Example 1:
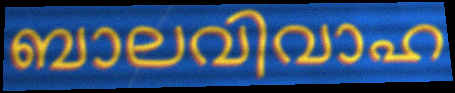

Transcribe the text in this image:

ബാലവിവാഹ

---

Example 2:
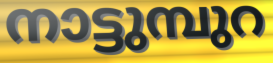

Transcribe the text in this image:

നാട്ടുമ്പുറ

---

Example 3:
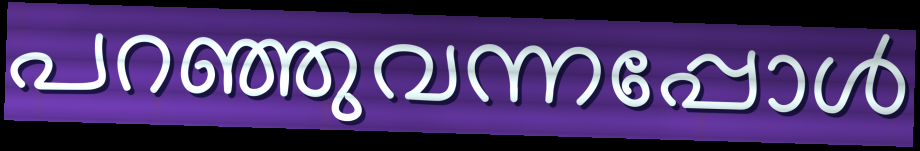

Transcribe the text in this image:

പറഞ്ഞുവന്നപ്പോൾ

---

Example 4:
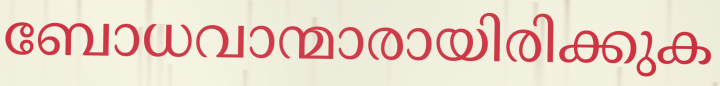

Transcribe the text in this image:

ബോധവാന്മാരായിരിക്കുക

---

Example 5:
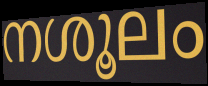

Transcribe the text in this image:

നശൂലം